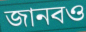
জানবও